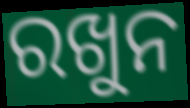
ରଖୁନ